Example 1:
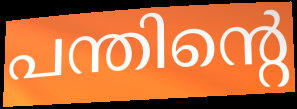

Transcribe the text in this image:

പന്തിന്റെ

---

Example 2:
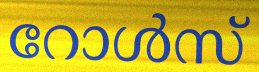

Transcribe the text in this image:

റോൾസ്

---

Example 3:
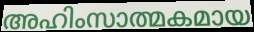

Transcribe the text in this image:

അഹിംസാത്മകമായ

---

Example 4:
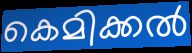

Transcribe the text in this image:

കെമിക്കൽ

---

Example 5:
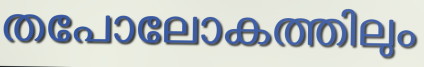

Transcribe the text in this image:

തപോലോകത്തിലും